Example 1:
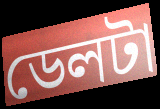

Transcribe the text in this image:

ডেলটা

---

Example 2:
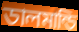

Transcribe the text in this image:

ডালমান্ডি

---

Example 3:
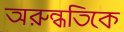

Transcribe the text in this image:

অরুন্ধতিকে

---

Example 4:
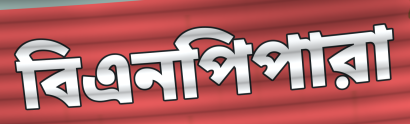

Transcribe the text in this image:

বিএনপিপারা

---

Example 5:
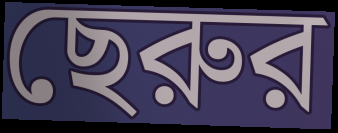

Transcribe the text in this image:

ছেরুর